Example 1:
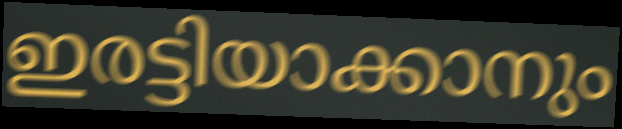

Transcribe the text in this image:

ഇരട്ടിയാക്കാനും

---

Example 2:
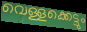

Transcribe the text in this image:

വെള്ളക്കെട്ടും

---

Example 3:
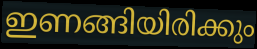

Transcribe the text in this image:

ഇണങ്ങിയിരിക്കും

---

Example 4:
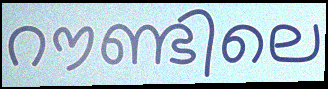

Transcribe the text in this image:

റൗണ്ടിലെ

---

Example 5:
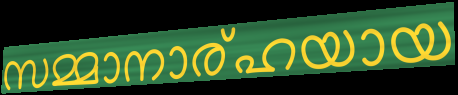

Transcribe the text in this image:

സമ്മാനാര്ഹയായ